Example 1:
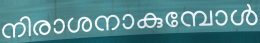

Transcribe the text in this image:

നിരാശനാകുമ്പോൾ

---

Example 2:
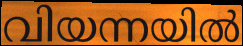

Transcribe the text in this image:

വിയന്നയിൽ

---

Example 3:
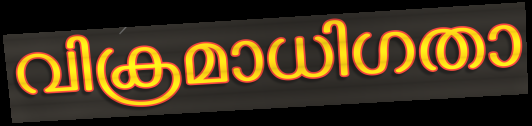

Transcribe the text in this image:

വിക്രമാധിഗതാ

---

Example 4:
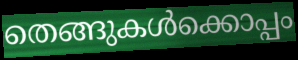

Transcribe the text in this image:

തെങ്ങുകൾക്കൊപ്പം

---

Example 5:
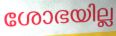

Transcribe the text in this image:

ശോഭയില്ല